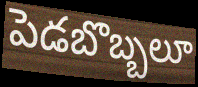
పెడబొబ్బలూ